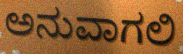
ಅನುವಾಗಲಿ